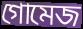
গোমেজ